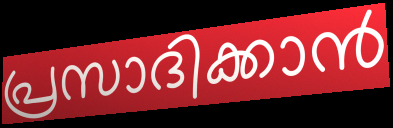
പ്രസാദിക്കാൻ